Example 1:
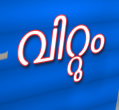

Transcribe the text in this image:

വിറ്റും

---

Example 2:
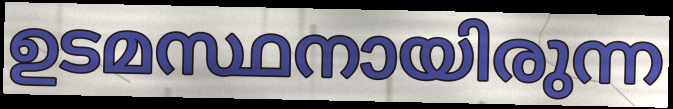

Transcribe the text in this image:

ഉടമസ്ഥനായിരുന്ന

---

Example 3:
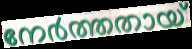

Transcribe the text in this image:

നേർത്തതായ്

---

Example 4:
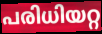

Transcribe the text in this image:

പരിധിയറ്റ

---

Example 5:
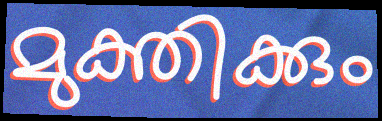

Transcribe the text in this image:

മുക്തിക്കും